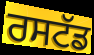
ਰਸਟੱਡ